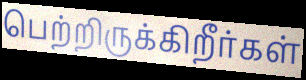
பெற்றிருக்கிறீர்கள்